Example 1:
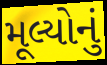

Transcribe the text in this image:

મૂલ્યોનું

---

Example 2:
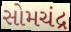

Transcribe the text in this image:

સોમચંદ્ર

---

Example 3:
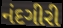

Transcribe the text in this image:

નંદગીરી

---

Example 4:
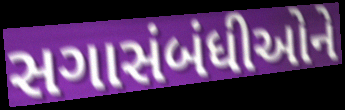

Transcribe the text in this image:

સગાસંબંધીઓને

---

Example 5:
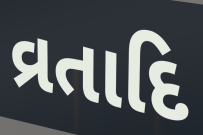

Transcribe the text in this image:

વ્રતાદિ